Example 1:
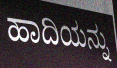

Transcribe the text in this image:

ಹಾದಿಯನ್ನು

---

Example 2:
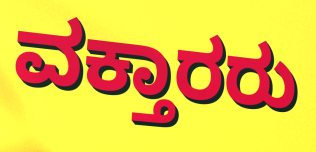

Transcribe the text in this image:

ವಕ್ತಾರರು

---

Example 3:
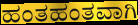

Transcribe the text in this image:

ಹಂತಹಂತವಾಗಿ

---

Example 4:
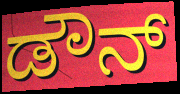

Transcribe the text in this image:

ಡೌನ್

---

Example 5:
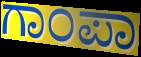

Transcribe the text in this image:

ಗಾಂಪಾ